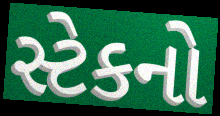
સ્ટેકનો